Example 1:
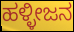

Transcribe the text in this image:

ಹಳ್ಳೀಜನ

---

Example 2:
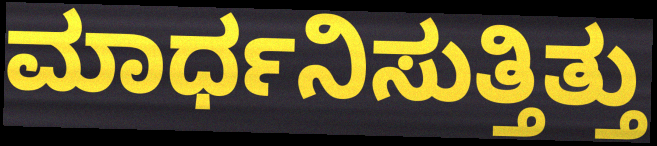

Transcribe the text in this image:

ಮಾರ್ಧನಿಸುತ್ತಿತ್ತು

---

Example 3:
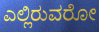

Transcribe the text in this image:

ಎಲ್ಲಿರುವರೋ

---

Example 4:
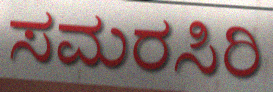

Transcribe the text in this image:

ಸಮರಸಿರಿ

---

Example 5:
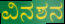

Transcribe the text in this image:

ವಿನಶನ